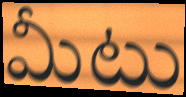
మీటు